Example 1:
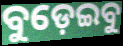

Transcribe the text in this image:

ବୁଡ଼େଇବୁ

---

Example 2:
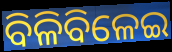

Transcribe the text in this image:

ବିଳିବିଳେଇ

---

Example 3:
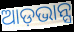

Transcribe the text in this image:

ଆଡ଼ଭାନ୍ସ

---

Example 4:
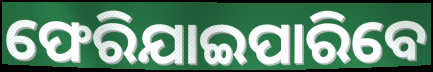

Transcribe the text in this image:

ଫେରିଯାଇପାରିବେ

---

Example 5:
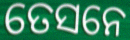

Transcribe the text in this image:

ତେସନେ